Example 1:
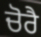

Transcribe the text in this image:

ਚੋਰੈ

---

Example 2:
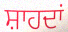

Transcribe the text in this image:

ਸ਼ਾਹਦਾਂ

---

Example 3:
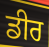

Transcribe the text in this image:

ਡੀਰ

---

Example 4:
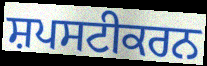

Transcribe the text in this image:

ਸ਼ਪਸਟੀਕਰਨ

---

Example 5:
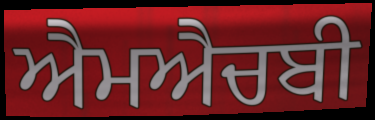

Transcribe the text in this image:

ਐਮਐਚਬੀ